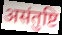
असंतुष्टि